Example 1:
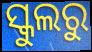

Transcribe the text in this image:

ସ୍କୁଲରୁ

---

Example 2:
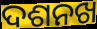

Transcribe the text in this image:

ଦଶନଖ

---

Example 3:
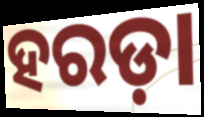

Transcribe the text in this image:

ହରଡ଼ା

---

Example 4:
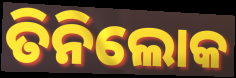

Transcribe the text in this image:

ତିନିଲୋକ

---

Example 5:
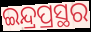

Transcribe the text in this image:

ଇନ୍ଦ୍ରପ୍ରସ୍ଥର